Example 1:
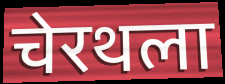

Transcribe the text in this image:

चेरथला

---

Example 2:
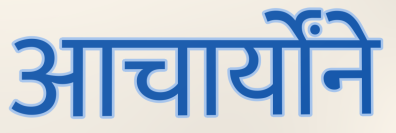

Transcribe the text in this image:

आचार्योंने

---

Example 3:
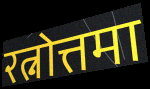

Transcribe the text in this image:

रत्नोत्तमा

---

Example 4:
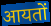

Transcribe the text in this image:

आयतों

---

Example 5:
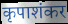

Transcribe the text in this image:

कृपाशंकर